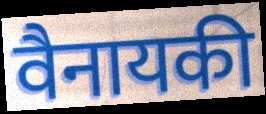
वैनायकी